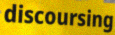
discoursing